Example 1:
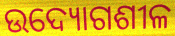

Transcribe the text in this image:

ଉଦ୍ୟୋଗଶୀଳ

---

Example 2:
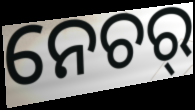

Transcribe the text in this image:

ନେଚର୍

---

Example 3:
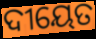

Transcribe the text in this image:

ଦୀୟେତ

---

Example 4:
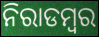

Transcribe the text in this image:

ନିରାଡମ୍ବର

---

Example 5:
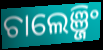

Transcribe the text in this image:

ଚାଲେଞ୍ଜିଂ